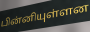
பின்னியுள்ளன